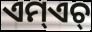
ଏମ୍ଏଚ୍